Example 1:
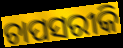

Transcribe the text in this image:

ଚାପସରୀକି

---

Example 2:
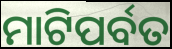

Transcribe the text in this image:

ମାଟିପର୍ବତ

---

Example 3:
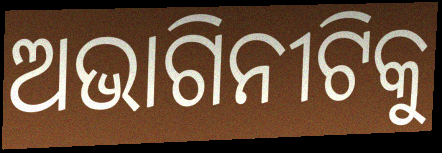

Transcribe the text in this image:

ଅଭାଗିନୀଟିକୁ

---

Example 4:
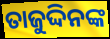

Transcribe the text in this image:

ତାଜୁଦ୍ଦିନଙ୍କ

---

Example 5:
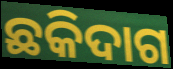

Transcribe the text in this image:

ଛକିଦାଗ